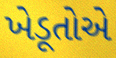
ખેડૂતોએ